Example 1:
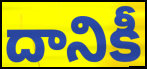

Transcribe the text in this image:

దానికీ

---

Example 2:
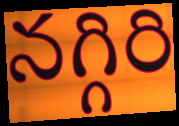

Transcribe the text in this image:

నగ్గిరి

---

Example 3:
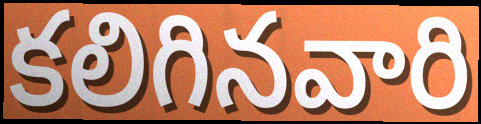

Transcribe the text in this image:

కలిగినవారి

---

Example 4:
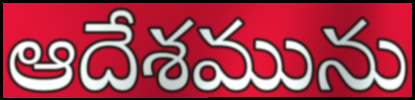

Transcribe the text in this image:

ఆదేశమును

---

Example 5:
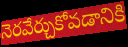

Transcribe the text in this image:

నెరవేర్చుకోవడానికి